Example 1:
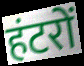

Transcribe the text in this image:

हंटरों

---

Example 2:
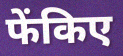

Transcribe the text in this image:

फेंकिए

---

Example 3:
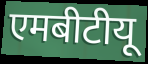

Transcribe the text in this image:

एमबीटीयू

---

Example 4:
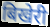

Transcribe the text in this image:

बिखेरी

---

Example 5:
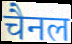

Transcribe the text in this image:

चैनल